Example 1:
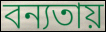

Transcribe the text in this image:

বন্যতায়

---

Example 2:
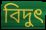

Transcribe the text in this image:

বিদুৎ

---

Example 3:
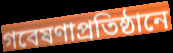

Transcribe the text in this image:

গবেষণাপ্রতিষ্ঠানে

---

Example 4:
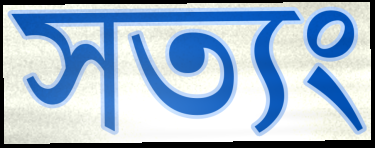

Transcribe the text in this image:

সত্যং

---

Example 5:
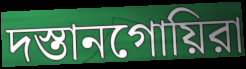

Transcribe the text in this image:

দস্তানগোয়িরা